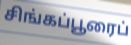
சிங்கப்பூரைப்